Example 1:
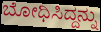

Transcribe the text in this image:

ಬೋಧಿಸಿದ್ದನ್ನು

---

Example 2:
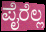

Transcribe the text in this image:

ಪೈರೆಲ್ಲ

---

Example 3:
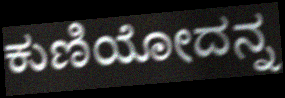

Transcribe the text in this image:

ಕುಣಿಯೋದನ್ನ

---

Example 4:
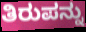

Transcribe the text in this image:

ತಿರುಪನ್ನು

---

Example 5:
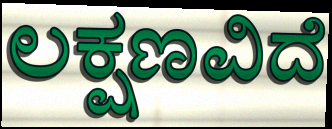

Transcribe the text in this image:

ಲಕ್ಷಣವಿದೆ